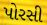
પોરસી